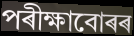
পৰীক্ষাবোৰৰ